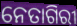
ନେତାଗିରୀ